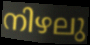
നിഴലു